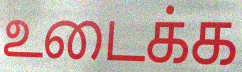
உடைக்க